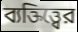
ব্যক্তিত্ত্বের